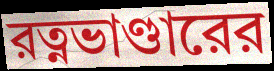
রত্নভাণ্ডারের